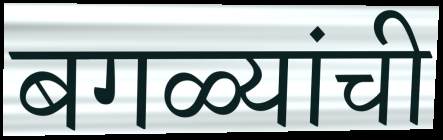
बगळ्यांची